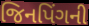
જિનપિંગની